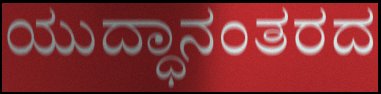
ಯುದ್ಧಾನಂತರದ